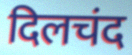
दिलचंद